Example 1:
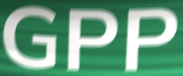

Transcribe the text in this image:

GPP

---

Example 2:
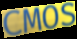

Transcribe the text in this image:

CMOS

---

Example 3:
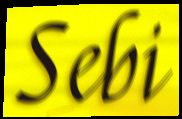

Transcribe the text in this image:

Sebi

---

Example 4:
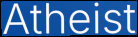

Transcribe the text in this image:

Atheist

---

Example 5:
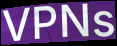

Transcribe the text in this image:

VPNs